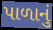
પાળાનું